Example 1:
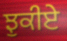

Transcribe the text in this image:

ਝੁਕੀਏ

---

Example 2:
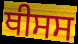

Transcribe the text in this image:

ਥੀਸਸ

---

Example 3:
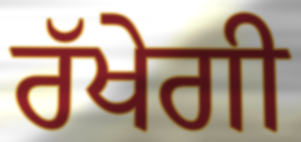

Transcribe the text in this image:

ਰੱਖੇਗੀ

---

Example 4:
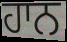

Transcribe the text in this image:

ਹਾਨ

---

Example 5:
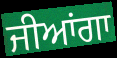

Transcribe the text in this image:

ਜੀਆਂਗਾ